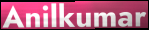
Anilkumar